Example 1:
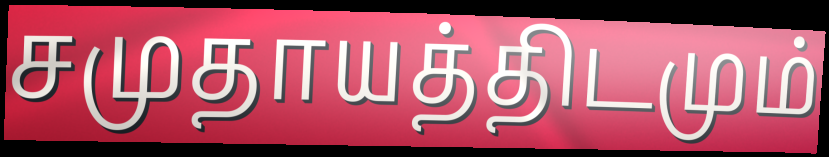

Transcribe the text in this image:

சமுதாயத்திடமும்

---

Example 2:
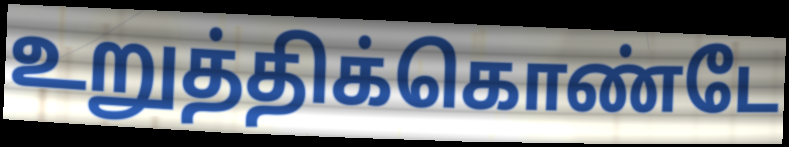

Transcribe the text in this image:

உறுத்திக்கொண்டே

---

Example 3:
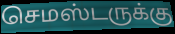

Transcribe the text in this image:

செமஸ்டருக்கு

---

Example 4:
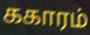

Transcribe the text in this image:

ககாரம்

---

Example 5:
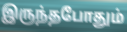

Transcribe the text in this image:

இருந்தபோதும்